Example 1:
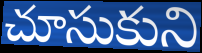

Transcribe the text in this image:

చూసుకుని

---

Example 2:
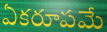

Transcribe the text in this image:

ఏకరూపమే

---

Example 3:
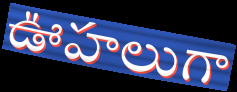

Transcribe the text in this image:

ఊహలుగా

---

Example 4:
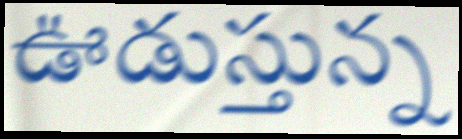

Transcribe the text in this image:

ఊడుస్తున్న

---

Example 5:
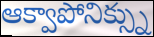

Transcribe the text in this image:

ఆక్వాపోనిక్స్ను